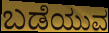
ಬಡೆಯುವ